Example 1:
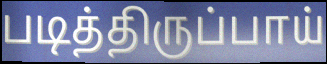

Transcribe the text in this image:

படித்திருப்பாய்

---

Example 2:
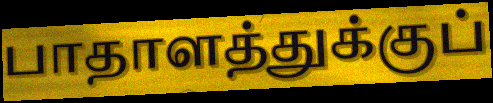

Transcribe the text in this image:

பாதாளத்துக்குப்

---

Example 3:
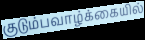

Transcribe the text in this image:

குடும்பவாழ்க்கையில்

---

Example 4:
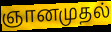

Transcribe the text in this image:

ஞானமுதல்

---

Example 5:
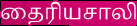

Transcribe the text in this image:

தைரியசாலி